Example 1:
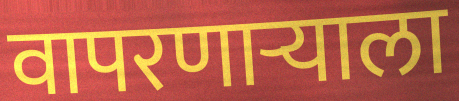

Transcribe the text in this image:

वापरणार्‍याला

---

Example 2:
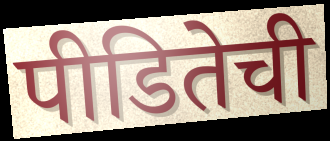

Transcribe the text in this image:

पीडितेची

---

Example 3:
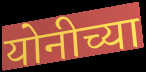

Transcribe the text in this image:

योनीच्या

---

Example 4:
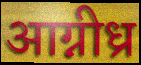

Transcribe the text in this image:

आग्नीध्र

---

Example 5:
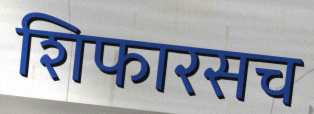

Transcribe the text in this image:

शिफारसच